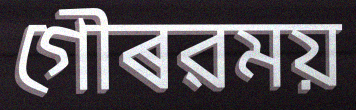
গৌৰৱময়